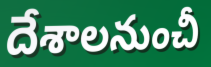
దేశాలనుంచీ